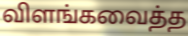
விளங்கவைத்த